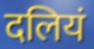
दलियं